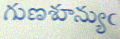
గుణశూన్యుఁ